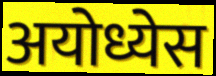
अयोध्येस